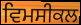
ਵਿਮਸੀਕਲ